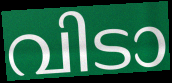
വിടാ